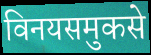
विनयसमुकसे